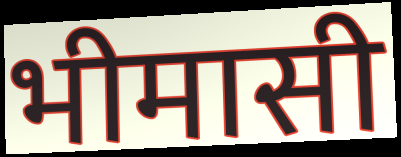
भीमासी